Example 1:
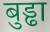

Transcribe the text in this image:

बुड्ढा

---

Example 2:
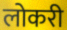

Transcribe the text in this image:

लोकरी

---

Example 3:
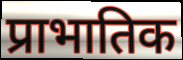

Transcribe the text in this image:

प्राभातिक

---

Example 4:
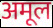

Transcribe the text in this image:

अमूल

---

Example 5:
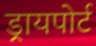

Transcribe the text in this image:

ड्रायपोर्ट